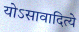
योऽसावादित्ये